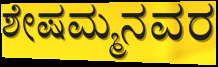
ಶೇಷಮ್ಮನವರ